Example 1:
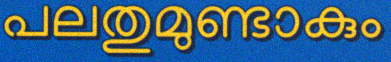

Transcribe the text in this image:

പലതുമുണ്ടാകും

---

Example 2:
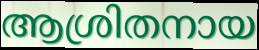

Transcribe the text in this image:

ആശ്രിതനായ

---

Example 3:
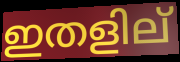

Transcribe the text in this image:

ഇതളില്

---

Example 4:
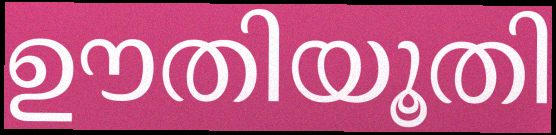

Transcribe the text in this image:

ഊതിയൂതി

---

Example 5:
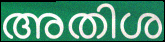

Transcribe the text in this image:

അതിശ